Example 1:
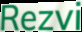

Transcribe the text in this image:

Rezvi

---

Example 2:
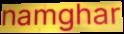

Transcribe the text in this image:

namghar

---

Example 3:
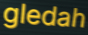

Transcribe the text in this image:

gledah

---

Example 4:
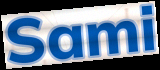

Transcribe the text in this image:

Sami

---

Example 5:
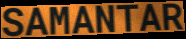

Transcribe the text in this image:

SAMANTAR